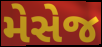
મેસેજ